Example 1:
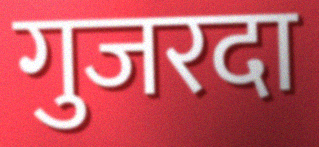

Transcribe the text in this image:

गुजरदा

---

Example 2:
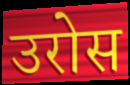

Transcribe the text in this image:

उरोस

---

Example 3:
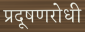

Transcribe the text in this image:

प्रदूषणरोधी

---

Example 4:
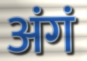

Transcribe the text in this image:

अंगं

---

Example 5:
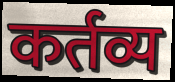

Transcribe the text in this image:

कर्तव्य